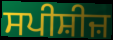
ਸਪੀਸ਼ੀਜ਼